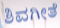
ಶಿವಗೀತೆ